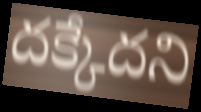
దక్కేదని